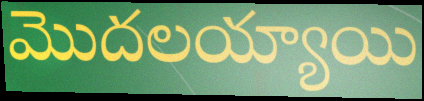
మొదలయ్యాయి